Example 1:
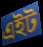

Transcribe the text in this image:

এইট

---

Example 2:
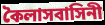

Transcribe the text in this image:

কৈলাসবাসিনী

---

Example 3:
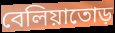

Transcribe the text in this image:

বেলিয়াতোড়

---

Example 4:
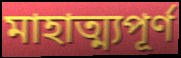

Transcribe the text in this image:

মাহাত্ম্যপূর্ণ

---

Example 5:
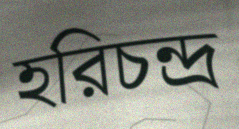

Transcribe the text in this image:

হরিচন্দ্র